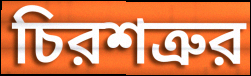
চিরশত্রুর